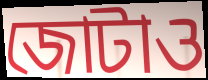
জোটাও